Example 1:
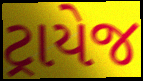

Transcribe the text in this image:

ટ્રાયેજ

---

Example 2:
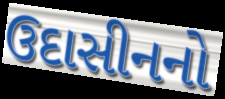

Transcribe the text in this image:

ઉદાસીનનો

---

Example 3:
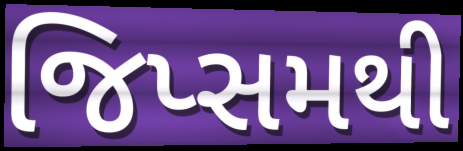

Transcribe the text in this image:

જિપ્સમથી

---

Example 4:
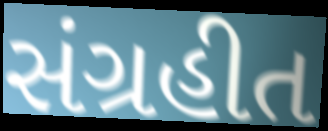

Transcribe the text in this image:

સંગ્રહીત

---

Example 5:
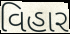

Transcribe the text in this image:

વિહાર